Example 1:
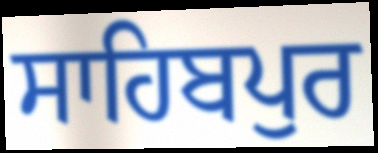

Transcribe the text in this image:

ਸਾਹਿਬਪੁਰ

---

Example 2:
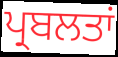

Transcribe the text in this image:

ਪ੍ਰਬਲਤਾਂ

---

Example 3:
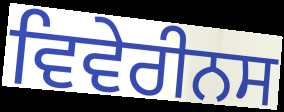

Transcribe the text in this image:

ਵਿਵੇਰੀਨਸ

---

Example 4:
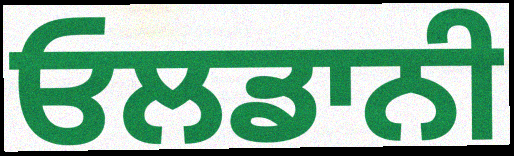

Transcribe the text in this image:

ਓਲਡਾਨੀ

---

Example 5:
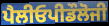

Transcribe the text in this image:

ਪੈਲੀਓਪੀਡੌਲੋਜੀ